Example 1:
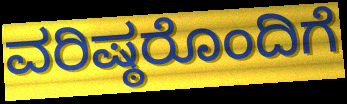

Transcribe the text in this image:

ವರಿಷ್ಠರೊಂದಿಗೆ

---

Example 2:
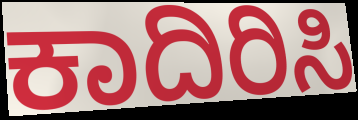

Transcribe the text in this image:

ಕಾದಿರಿಸಿ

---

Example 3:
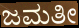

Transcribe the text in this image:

ಜಮತೀ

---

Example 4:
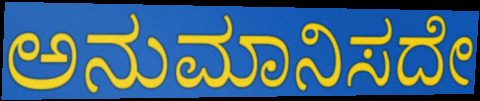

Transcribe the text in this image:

ಅನುಮಾನಿಸದೇ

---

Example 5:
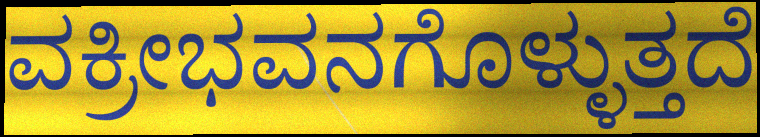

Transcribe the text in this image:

ವಕ್ರೀಭವನಗೊಳ್ಳುತ್ತದೆ